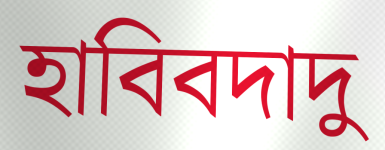
হাবিবদাদু